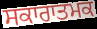
ਸਕਾਰਾਤਮਕ